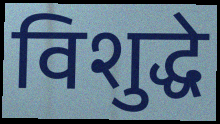
विशुद्धे